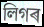
লিগৰ